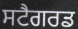
ਸਟੈਗਰਡ